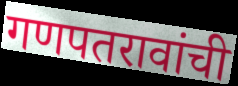
गणपतरावांची